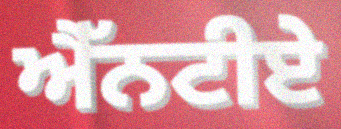
ਐੱਨਟੀਏ